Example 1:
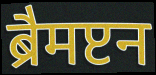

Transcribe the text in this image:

ब्रैमप्टन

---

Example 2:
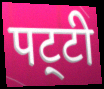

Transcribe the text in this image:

पट्‌टी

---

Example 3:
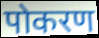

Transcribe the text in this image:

पोकरण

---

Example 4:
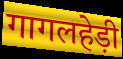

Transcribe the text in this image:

गागलहेड़ी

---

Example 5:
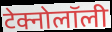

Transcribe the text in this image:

टेक्नोलॉली